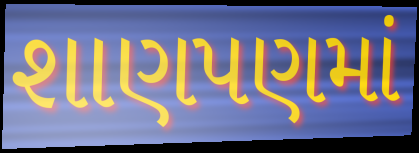
શાણપણમાં